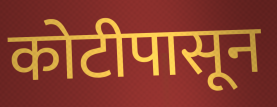
कोटीपासून